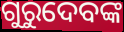
ଗୁରୁଦେବଙ୍କ